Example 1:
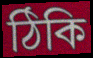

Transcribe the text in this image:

ঠিকি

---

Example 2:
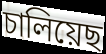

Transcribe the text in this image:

চালিয়েছ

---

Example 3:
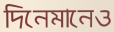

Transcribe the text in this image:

দিনেমানেও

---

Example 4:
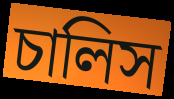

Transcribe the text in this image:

চালিস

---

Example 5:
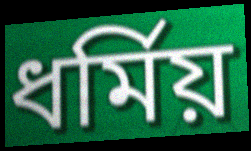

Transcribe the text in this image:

ধর্মিয়